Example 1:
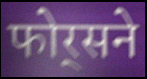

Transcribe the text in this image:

फोर्सने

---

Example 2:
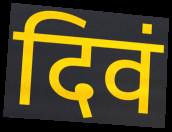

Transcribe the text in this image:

दिवं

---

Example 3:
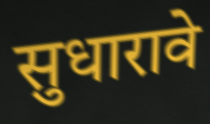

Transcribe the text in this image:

सुधारावे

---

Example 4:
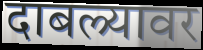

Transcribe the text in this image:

दाबल्यावर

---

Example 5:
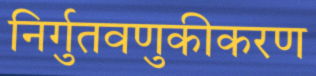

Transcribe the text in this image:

निर्गुतवणुकीकरण